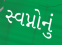
સ્વપ્નોનું